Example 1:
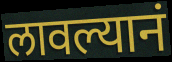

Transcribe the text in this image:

लावल्यानं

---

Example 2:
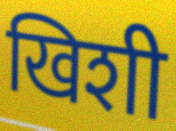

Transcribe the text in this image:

खिशी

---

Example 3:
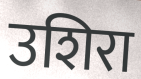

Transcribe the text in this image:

उशिरा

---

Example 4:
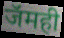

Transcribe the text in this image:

जॅमही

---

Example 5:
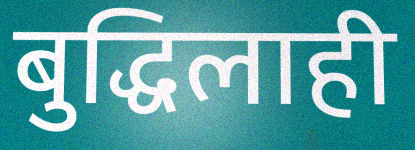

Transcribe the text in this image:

बुद्धिलाही